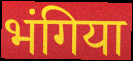
भंगिया